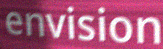
envision